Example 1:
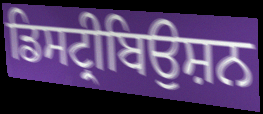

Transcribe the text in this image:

ਡਿਸਟ੍ਰੀਬਿਉਸ਼ਨ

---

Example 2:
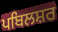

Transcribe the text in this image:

ਪਬਿਲਸ਼ਰ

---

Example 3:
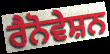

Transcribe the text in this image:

ਰੈਨੋਵੇਸ਼ਨ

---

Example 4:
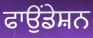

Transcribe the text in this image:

ਫਾਉਂਡੇਸ਼ਨ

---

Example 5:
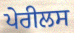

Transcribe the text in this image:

ਪੇਰੀਲਸ